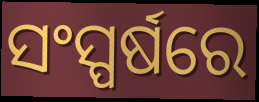
ସଂସ୍ପର୍ଷରେ